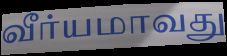
வீர்யமாவது